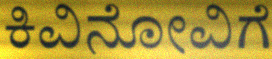
ಕಿವಿನೋವಿಗೆ